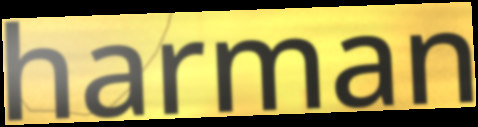
harman